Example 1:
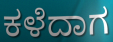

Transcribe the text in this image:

ಕಳೆದಾಗ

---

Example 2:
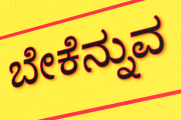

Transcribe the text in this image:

ಬೇಕೆನ್ನುವ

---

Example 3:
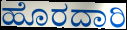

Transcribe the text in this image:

ಹೊರದಾರಿ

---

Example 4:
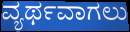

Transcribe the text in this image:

ವ್ಯರ್ಥವಾಗಲು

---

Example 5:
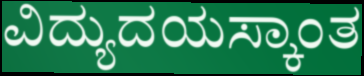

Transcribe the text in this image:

ವಿದ್ಯುದಯಸ್ಕಾಂತ